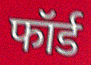
फॉर्ड